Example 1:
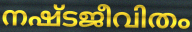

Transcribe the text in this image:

നഷ്ടജീവിതം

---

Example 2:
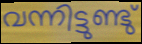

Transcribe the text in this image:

വന്നിട്ടുണ്ടു്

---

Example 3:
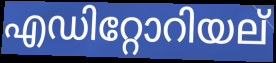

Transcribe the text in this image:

എഡിറ്റോറിയല്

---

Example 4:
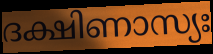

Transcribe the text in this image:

ദക്ഷിണാസ്യഃ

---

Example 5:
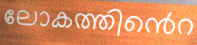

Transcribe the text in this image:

ലോകത്തിൻെറ